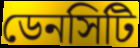
ডেনসিটি